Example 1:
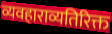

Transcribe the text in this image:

व्यवहाराव्यतिरिक्त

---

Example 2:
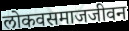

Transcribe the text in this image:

लोकवसमाजजीवन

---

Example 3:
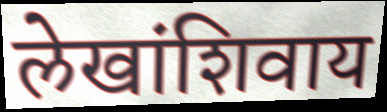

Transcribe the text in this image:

लेखांशिवाय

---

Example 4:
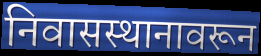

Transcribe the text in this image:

निवासस्थानावरून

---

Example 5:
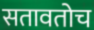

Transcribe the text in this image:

सतावतोच